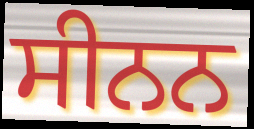
ਸੀਨਨ